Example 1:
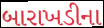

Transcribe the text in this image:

બારાખડીના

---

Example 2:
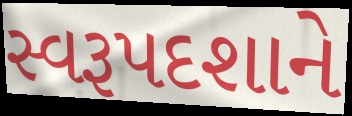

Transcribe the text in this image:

સ્વરૂપદશાને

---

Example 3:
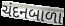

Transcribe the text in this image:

ચંદનબાળા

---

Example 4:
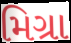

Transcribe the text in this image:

મિગ્રા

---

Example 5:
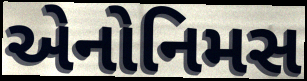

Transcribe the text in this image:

એનોનિમસ